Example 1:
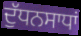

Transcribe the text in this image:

ਦੁੱਧਨਸਾਧਾਂ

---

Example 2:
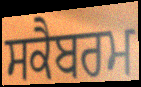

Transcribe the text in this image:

ਸਕੈਬਰਮ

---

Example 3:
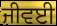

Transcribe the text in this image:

ਜੀਵਈ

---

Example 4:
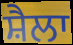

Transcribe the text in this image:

ਸ਼ੈਲਾ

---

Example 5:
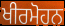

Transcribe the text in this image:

ਖੀਰਮੋਹਨ